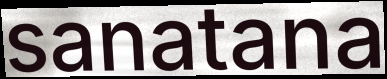
sanatana